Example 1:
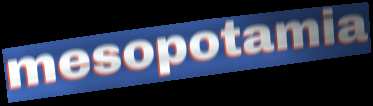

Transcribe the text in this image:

mesopotamia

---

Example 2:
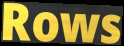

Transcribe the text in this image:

Rows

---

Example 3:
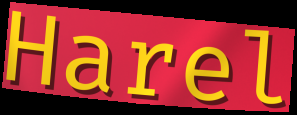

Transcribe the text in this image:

Harel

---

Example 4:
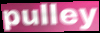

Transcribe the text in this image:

pulley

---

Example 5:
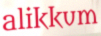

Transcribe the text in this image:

alikkum